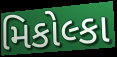
મિકોલ્કા